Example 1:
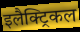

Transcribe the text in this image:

इलैक्ट्रिकल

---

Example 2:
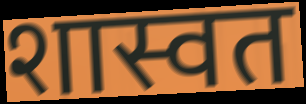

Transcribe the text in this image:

शास्वत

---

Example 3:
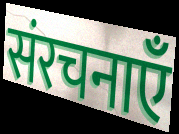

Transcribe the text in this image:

संरचनाएँ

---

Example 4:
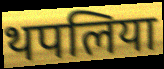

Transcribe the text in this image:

थपलिया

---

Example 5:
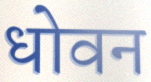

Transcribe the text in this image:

धोवन